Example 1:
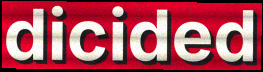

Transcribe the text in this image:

dicided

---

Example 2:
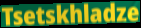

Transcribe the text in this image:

Tsetskhladze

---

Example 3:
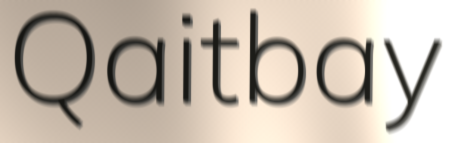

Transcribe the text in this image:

Qaitbay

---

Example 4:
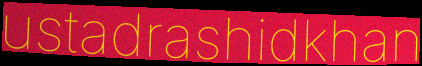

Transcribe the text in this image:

ustadrashidkhan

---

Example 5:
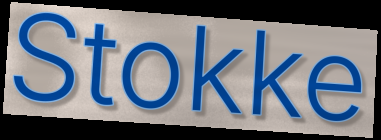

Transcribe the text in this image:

Stokke